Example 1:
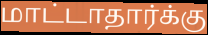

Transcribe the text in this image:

மாட்டாதார்க்கு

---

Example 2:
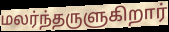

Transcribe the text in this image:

மலர்ந்தருளுகிறார்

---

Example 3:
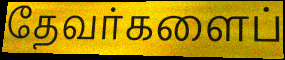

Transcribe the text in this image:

தேவர்களைப்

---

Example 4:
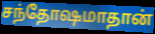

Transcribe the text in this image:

சந்தோஷமாதான்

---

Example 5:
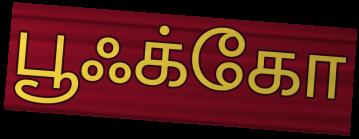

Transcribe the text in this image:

பூஃக்கோ